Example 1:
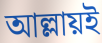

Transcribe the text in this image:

আল্লায়ই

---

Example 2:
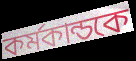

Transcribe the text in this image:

কর্মকান্ডকে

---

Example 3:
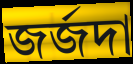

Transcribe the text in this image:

জর্জদা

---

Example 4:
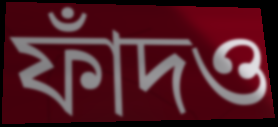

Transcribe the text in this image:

ফাঁদও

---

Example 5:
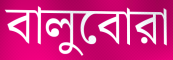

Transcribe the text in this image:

বালুবোরা